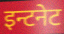
इन्टनेट